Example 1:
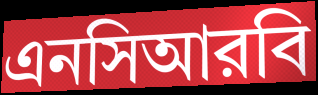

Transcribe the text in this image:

এনসিআরবি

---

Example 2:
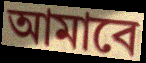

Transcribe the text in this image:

আমাবে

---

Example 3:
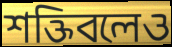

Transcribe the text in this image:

শক্তিবলেও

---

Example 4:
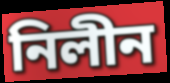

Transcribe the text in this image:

নিলীন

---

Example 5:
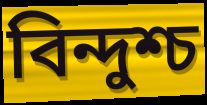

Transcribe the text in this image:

বিন্দুশ্চ